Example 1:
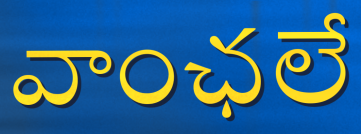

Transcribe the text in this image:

వాంఛలే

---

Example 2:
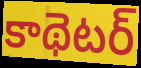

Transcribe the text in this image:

కాథెటర్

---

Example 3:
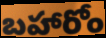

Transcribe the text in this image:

బహారోం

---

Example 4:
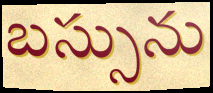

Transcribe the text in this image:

బస్సును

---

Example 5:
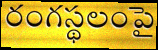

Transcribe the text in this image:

రంగస్థలంపై